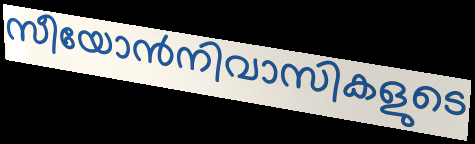
സീയോൻനിവാസികളുടെ